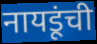
नायडूंची